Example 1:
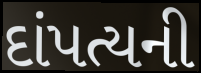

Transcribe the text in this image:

દાંપત્યની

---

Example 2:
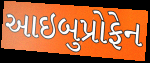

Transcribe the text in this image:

આઇબુપ્રોફેન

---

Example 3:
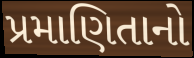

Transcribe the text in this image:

પ્રમાણિતાનો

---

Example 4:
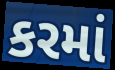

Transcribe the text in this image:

કરમાં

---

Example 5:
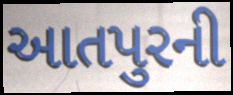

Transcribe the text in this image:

આતપુરની